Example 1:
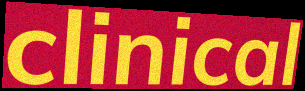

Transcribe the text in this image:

clinical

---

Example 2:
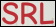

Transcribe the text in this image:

SRL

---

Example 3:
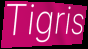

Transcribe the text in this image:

Tigris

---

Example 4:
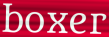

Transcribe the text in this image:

boxer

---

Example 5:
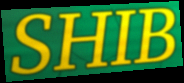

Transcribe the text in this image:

SHIB